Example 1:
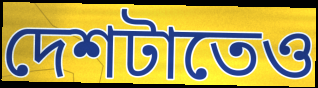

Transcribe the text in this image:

দেশটাতেও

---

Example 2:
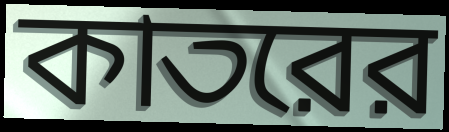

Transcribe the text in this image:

কাতরের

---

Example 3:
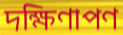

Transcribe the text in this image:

দক্ষিণাপণ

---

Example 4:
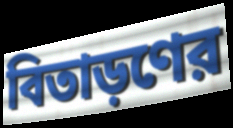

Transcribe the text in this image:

বিতাড়ণের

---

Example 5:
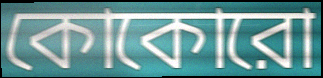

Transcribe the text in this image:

কোকোরো